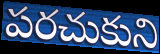
పరచుకుని